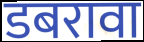
डबरावा